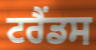
ਟਰੈਂਡਸ